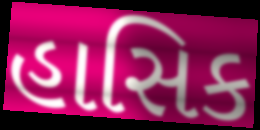
હાસિક